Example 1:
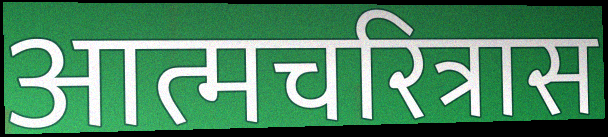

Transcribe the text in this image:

आत्मचरित्रास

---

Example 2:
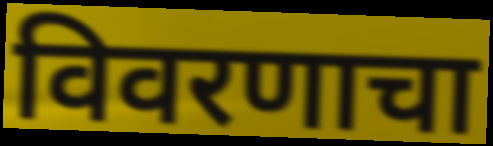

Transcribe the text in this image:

विवरणाचा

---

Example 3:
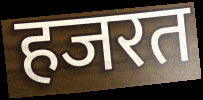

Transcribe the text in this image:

हजरत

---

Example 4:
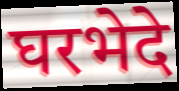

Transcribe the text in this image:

घरभेदे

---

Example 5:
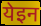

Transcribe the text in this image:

येइन